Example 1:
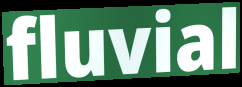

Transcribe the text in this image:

fluvial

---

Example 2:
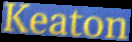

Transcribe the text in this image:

Keaton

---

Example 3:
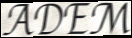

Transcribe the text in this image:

ADEM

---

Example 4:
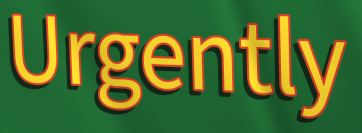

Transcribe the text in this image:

Urgently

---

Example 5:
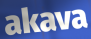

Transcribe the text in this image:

akava